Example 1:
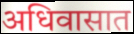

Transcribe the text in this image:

अधिवासात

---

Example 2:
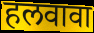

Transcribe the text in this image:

हलवावा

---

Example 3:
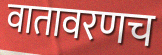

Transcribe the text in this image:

वातावरणच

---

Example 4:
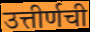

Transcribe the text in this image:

उत्तीर्णची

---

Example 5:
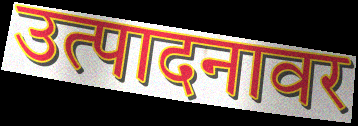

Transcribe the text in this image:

उत्पादनावर